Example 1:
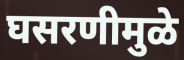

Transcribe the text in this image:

घसरणीमुळे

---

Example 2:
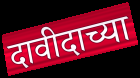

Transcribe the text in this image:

दावीदाच्या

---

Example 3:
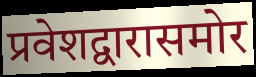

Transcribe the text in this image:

प्रवेशद्वारासमोर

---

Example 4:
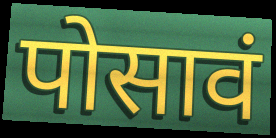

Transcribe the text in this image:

पोसावं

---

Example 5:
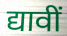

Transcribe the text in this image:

द्यावीं